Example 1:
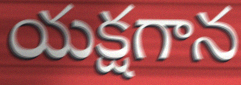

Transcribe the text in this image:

యక్షగాన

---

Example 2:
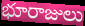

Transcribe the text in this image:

భూరాజులు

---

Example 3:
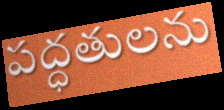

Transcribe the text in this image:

పద్ధతులను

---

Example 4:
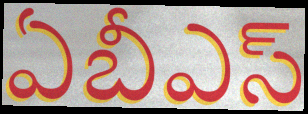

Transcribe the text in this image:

ఏబీఎస్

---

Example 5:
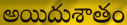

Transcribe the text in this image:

అయిదుశాతం